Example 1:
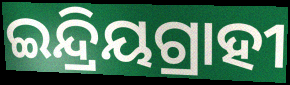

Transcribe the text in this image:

ଇନ୍ଦ୍ରିୟଗ୍ରାହୀ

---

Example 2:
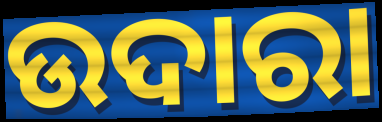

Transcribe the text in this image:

ଉଦାରା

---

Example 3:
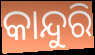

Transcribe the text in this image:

କାନ୍ଦୁରି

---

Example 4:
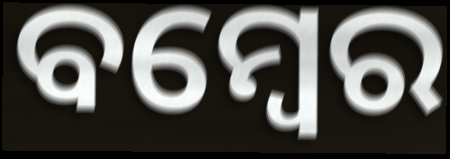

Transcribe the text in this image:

ବମ୍ୱେର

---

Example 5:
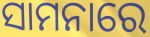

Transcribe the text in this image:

ସାମନାରେ